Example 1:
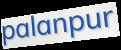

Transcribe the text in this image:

palanpur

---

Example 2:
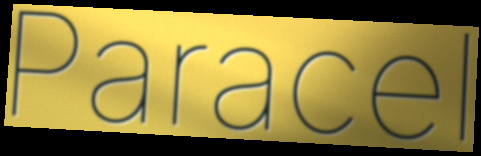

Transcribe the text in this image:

Paracel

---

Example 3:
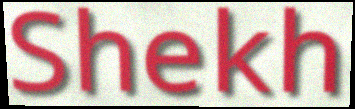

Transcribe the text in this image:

Shekh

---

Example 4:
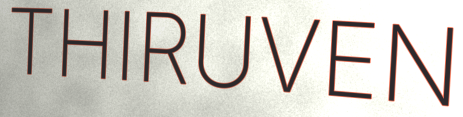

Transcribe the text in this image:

THIRUVEN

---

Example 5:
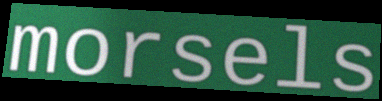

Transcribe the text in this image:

morsels